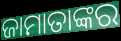
ଜାମାତାଙ୍କର